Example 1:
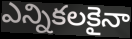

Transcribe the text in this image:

ఎన్నికలకైనా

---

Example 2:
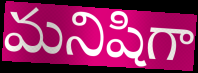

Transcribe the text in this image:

మనిషిగా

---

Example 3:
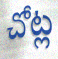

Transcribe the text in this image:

చోట్ల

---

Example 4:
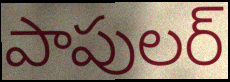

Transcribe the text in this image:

పాపులర్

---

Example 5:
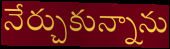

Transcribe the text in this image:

నేర్చుకున్నాను